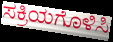
ಸಕ್ರಿಯಗೊಳಿಸಿ